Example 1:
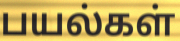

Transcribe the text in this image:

பயல்கள்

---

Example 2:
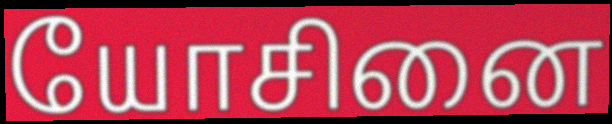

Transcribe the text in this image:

யோசினை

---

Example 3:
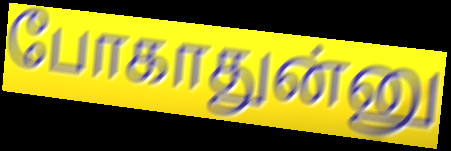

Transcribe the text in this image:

போகாதுன்னு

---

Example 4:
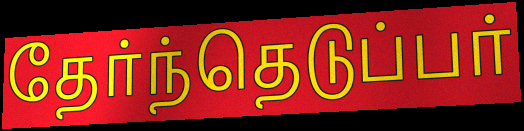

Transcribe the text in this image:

தேர்ந்தெடுப்பர்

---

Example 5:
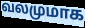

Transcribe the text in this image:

வலமுமாக